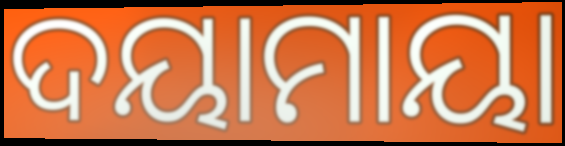
ଦୟାମାୟା